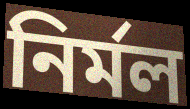
নির্মল